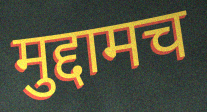
मुद्दामच